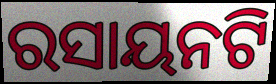
ରସାୟନଟି